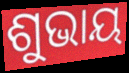
ଶୁଭାୟ